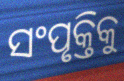
ସଂପୃକ୍ତିକୁ